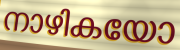
നാഴികയോ